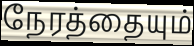
நேரத்தையும்